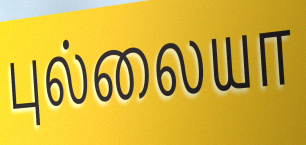
புல்லையா